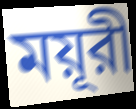
ময়ূরী